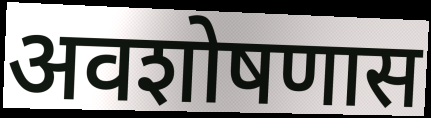
अवशोषणास